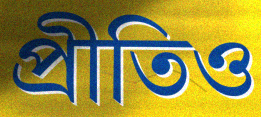
প্রীতিও